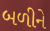
બળીને